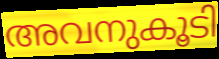
അവനുകൂടി